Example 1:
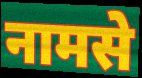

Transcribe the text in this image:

नामसे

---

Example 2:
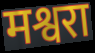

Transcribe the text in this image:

मश्वरा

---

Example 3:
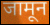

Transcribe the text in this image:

जामून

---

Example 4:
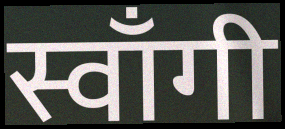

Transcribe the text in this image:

स्वाँगी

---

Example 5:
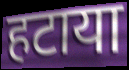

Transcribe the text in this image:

हटाया